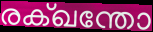
രക്ഖന്തോ